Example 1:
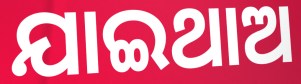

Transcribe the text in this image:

ଯାଇଥାଅ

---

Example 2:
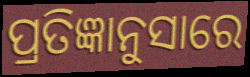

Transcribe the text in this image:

ପ୍ରତିଜ୍ଞାନୁସାରେ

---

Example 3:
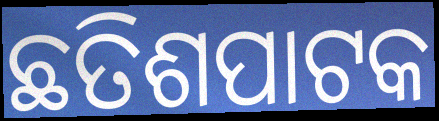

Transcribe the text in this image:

ଛତିଶପାଟକ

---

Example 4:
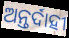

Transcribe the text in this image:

ଅନ୍ତର୍ଦାହୀ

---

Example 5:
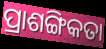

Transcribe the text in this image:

ପ୍ରାଶଙ୍ଗିକତା